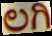
ಲಗಿ